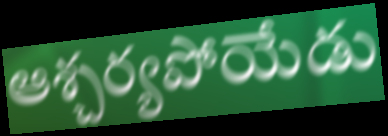
ఆశ్చర్యపోయేడు